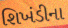
શિખંડીના